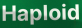
Haploid